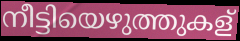
നീട്ടിയെഴുത്തുകള്